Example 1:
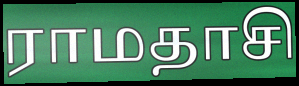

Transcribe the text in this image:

ராமதாசி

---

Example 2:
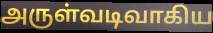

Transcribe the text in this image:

அருள்வடிவாகிய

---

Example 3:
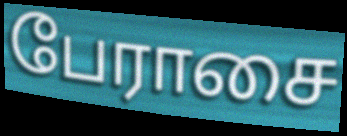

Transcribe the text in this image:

பேராசை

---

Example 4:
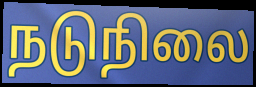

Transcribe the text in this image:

நடுநிலை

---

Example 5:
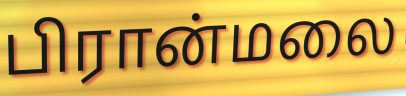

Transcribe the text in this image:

பிரான்மலை